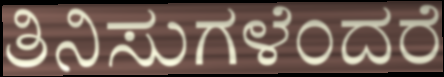
ತಿನಿಸುಗಳೆಂದರೆ